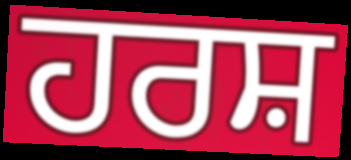
ਹਰਸ਼